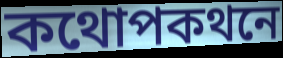
কথোপকথনে